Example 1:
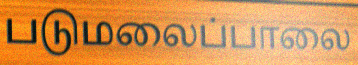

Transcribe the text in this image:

படுமலைப்பாலை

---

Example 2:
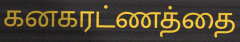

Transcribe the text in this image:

கனகரட்ணத்தை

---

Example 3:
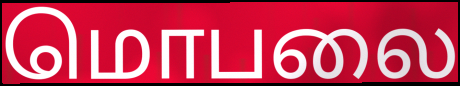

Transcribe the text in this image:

மொபலை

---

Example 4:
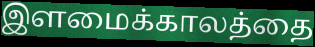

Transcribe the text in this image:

இளமைக்காலத்தை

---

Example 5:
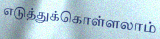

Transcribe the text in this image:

எடுத்துக்கொள்ளலாம்